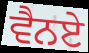
ਵੈਨਏ